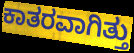
ಕಾತರವಾಗಿತ್ತು